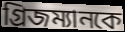
গ্রিজম্যানকে